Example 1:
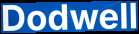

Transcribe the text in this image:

Dodwell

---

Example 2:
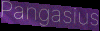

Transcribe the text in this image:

Pangasius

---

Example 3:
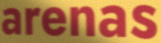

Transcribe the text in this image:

arenas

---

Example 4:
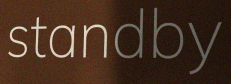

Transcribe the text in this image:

standby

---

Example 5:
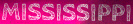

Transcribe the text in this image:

MISSISSIPPI